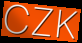
CZK